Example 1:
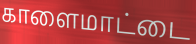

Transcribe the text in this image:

காளைமாட்டை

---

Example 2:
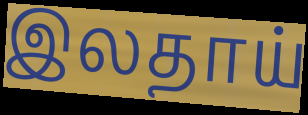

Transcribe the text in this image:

இலதாய்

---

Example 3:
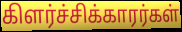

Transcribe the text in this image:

கிளர்ச்சிக்காரர்கள்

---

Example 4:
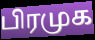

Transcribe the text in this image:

பிரமுக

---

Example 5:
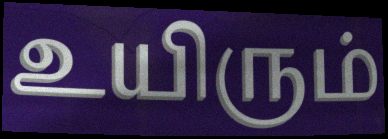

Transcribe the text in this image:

உயிரும்